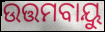
ଉତ୍ତମବାୟୁ